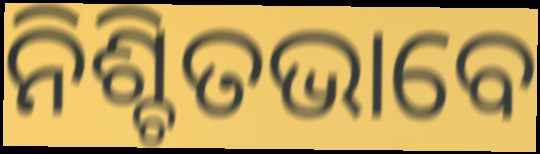
ନିଶ୍ଚିତଭାବେ